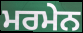
ਮਰਮੇਨ